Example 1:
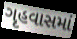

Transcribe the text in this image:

ગૃહવાસમાં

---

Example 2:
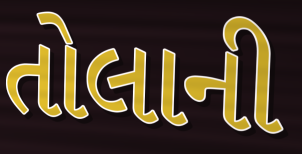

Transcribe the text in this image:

તોલાની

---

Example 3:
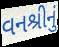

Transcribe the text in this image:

વનશ્રીનું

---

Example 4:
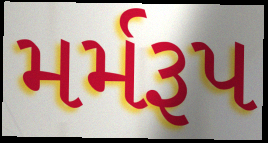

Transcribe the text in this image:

મર્મરૂપ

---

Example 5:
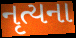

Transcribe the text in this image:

નૃત્યના